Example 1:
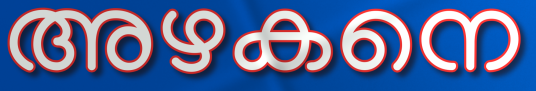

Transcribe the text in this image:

അഴകനെ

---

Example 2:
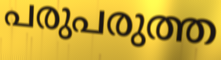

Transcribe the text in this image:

പരുപരുത്ത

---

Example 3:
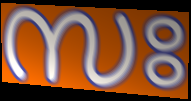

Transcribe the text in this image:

സഃ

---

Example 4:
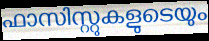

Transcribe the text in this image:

ഫാസിസ്റ്റുകളുടെയും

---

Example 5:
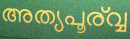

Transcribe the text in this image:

അത്യപൂര്വ്വ